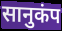
सानुकंप